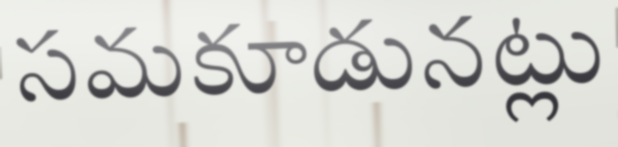
సమకూడునట్లు